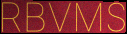
RBVMS